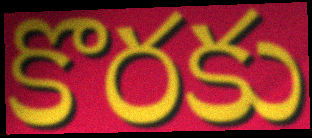
కొరకు